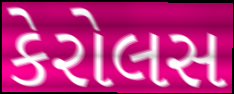
કેરોલસ